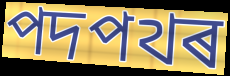
পদপথৰ